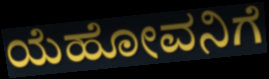
ಯೆಹೋವನಿಗೆ